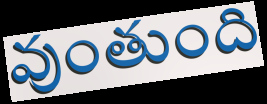
వుంతుంది